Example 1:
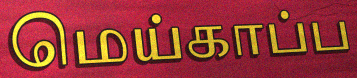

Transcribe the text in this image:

மெய்காப்ப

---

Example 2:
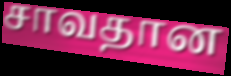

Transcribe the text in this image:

சாவதான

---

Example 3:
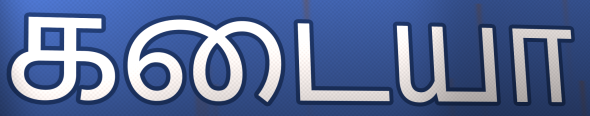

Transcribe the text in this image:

கடையா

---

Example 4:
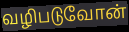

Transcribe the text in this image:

வழிபடுவோன்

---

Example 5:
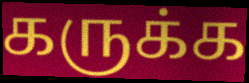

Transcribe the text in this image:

கருக்க